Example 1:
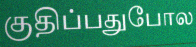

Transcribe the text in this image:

குதிப்பதுபோல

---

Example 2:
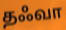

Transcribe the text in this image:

தஃவா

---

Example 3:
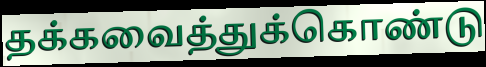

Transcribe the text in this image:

தக்கவைத்துக்கொண்டு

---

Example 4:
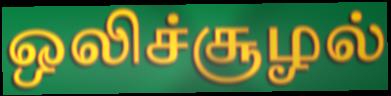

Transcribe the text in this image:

ஒலிச்சூழல்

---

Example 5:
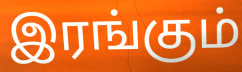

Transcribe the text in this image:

இரங்கும்